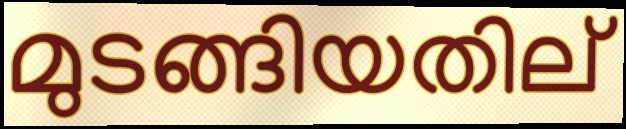
മുടങ്ങിയതില്